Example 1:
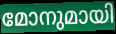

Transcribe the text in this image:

മോനുമായി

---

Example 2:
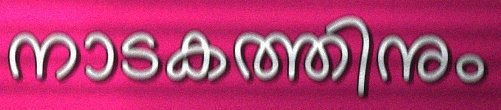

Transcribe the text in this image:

നാടകത്തിനും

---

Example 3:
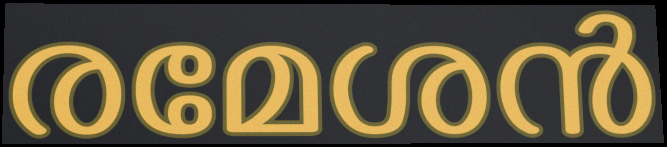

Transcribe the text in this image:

രമേശൻ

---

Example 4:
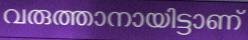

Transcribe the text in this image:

വരുത്താനായിട്ടാണ്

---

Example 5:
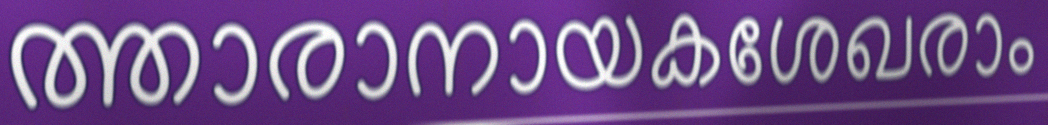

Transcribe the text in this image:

ത്താരാനായകശേഖരാം